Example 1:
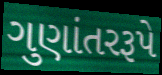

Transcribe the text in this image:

ગુણાંતરરૂપે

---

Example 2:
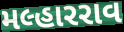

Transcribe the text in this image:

મલ્હારરાવ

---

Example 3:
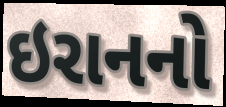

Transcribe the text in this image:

ઇરાનનો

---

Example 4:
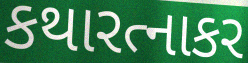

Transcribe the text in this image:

કથારત્નાકર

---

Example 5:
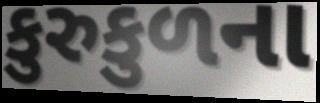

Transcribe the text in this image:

કુરુકુળના